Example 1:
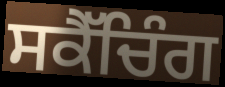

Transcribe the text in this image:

ਸਕੈੱਚਿੰਗ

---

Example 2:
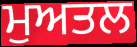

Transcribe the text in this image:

ਮੁਅਤਲ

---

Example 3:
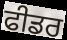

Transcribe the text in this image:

ਫੀਡਰ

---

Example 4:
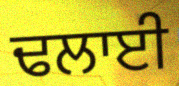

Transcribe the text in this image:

ਢਲਾਈ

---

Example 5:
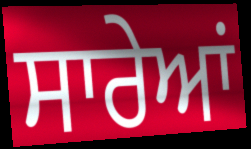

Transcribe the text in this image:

ਸਾਰੇਆਂ